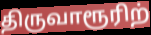
திருவாரூரிற்